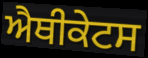
ਐਥੀਕੇਟਸ